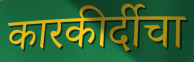
कारकीर्दीचा